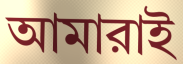
আমারাই